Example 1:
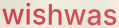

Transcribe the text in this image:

wishwas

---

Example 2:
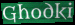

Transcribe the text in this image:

Ghodki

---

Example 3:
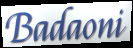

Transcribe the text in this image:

Badaoni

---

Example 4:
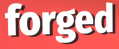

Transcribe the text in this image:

forged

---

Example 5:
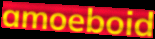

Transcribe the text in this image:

amoeboid